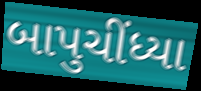
બાપુચીંધ્યા